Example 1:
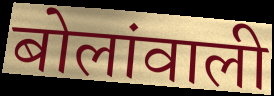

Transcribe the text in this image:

बोलांवाली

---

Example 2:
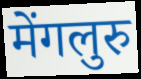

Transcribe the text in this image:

मेंगलुरु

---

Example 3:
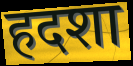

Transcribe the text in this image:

हदशा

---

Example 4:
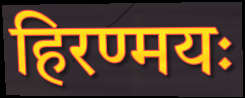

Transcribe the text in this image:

हिरण्मयः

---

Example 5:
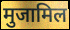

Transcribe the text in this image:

मुजामिल